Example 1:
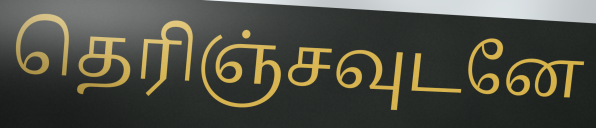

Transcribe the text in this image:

தெரிஞ்சவுடனே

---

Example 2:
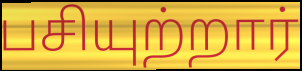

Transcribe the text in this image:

பசியுற்றார்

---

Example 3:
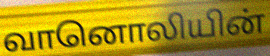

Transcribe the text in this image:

வானொலியின்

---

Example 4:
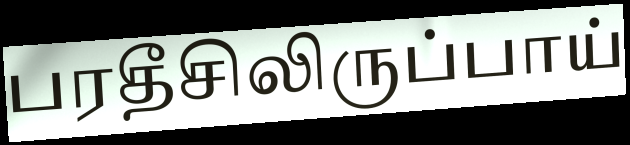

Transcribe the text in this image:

பரதீசிலிருப்பாய்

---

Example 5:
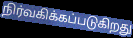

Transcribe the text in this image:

நிர்வகிக்கப்படுகிறது